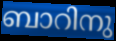
ബാറിനു